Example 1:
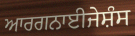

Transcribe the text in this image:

ਆਰਗਨਾਈਜੇਸ਼ੰਸ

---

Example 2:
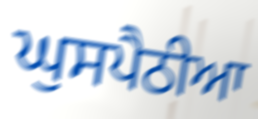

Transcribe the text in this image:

ਘੁਸਪੈਠੀਆ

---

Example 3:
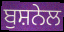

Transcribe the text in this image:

ਬੁਸ਼ਨੇਲ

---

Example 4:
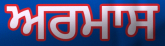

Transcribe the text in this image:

ਅਰਮਾਸ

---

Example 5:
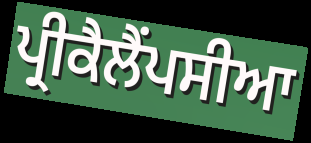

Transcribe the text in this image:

ਪ੍ਰੀਕੈਲੈਂਪਸੀਆ